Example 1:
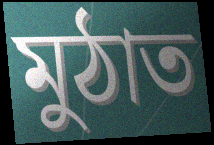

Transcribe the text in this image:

মুঠাত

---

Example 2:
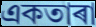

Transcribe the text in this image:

একতাৰা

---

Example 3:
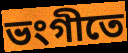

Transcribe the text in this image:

ভংগীতে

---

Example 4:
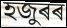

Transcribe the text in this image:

হজুৰৰ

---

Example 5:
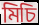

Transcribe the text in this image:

মিচি